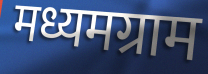
मध्यमग्राम